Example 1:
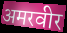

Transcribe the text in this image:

अमरवीर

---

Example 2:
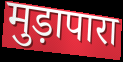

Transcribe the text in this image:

मुड़ापारा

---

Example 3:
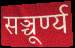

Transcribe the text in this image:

सञ्चूर्ण्य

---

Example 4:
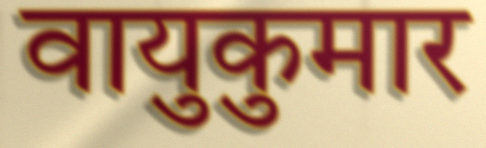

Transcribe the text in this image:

वायुकुमार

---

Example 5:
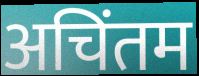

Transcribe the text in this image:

अचिंतम